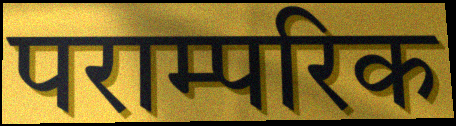
पराम्परिक